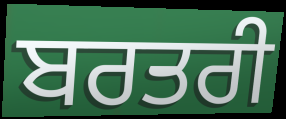
ਬਰਤਰੀ